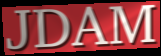
JDAM